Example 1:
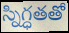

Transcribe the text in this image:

స్నిగ్ధతతో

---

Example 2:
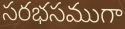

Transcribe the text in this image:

సరభసముగా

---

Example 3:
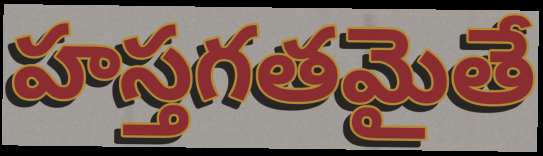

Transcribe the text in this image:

హస్తగతమైతే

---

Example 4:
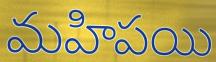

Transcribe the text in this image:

మహిపయి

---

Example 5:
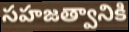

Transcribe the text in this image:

సహజత్వానికి